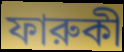
ফারুকী